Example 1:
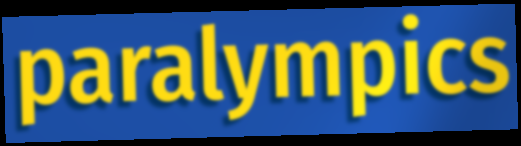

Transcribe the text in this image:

paralympics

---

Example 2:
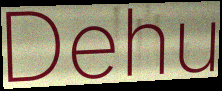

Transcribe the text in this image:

Dehu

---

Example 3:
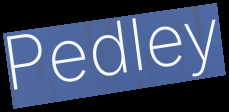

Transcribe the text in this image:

Pedley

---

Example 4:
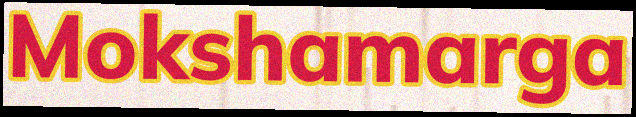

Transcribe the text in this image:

Mokshamarga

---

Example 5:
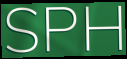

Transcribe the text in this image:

SPH